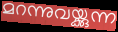
മറന്നുവയ്ക്കുന്ന